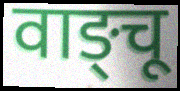
वाङ्चू